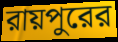
রায়পুরের